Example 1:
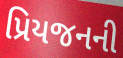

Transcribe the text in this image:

પ્રિયજનની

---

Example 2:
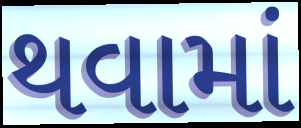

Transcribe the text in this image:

થવામાં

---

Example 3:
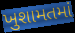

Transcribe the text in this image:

ખુશામતમાં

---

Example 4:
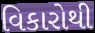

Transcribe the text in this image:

વિકારોથી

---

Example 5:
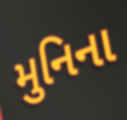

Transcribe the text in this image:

મુનિના